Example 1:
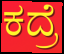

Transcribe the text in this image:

ಕದ್ರೆ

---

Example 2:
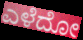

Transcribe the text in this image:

ಎಳೆದೋ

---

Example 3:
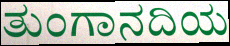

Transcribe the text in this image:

ತುಂಗಾನದಿಯ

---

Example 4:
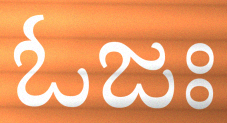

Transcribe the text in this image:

ಓಜಃ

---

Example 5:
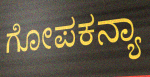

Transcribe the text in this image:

ಗೋಪಕನ್ಯಾ